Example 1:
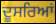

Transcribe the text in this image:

ਦੂਸਰਿਆਂ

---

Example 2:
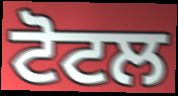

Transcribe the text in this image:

ਟੋਟਲ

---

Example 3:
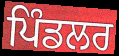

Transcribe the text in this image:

ਪਿੰਡਲਰ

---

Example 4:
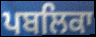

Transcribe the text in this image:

ਪਬਲਿਕਾ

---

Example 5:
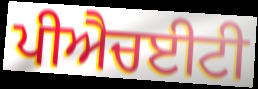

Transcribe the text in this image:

ਪੀਐਚਈਟੀ